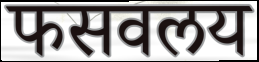
फसवलय